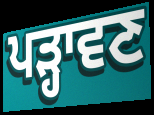
ਪੜ੍ਹਾਵਣ